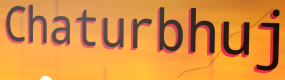
Chaturbhuj